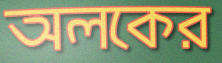
অলকের